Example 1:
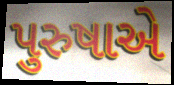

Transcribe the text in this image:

પુરુષાએ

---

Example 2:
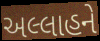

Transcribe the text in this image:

અલ્લાહને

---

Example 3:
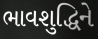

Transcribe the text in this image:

ભાવશુદ્ધિને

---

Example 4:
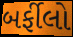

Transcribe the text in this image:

બર્ફીલો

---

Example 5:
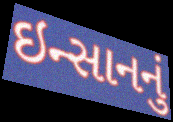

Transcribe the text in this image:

ઇન્સાનનું